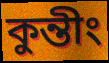
কুন্তীং